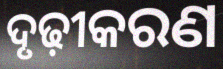
ଦୃଢ଼ୀକରଣ